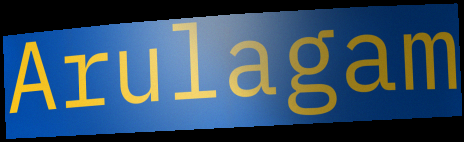
Arulagam